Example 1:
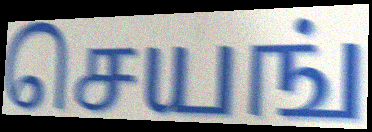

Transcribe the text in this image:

செயங்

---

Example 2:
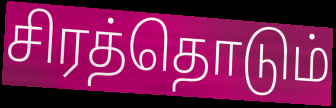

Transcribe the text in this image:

சிரத்தொடும்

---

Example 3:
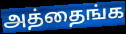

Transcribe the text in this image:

அத்தைங்க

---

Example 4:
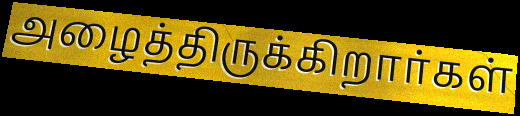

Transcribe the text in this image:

அழைத்திருக்கிறார்கள்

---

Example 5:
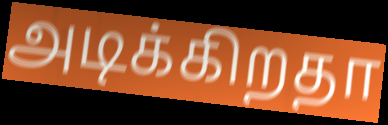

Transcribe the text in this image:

அடிக்கிறதா